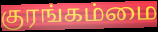
குரங்கம்மை